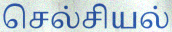
செல்சியல்